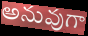
అనువుగా